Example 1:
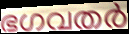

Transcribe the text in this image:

ഭഗവതർ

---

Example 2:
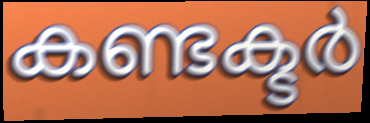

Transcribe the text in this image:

കണ്ടക്ടർ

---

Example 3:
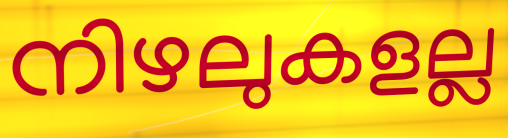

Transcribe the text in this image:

നിഴലുകളല്ല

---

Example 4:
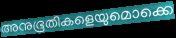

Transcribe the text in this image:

അനുഭൂതികളെയുമൊക്കെ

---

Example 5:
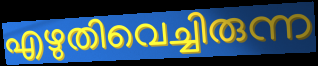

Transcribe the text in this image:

എഴുതിവെച്ചിരുന്ന